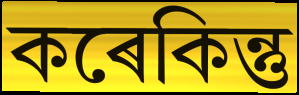
কৰেকিন্তু